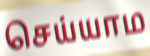
செய்யாம